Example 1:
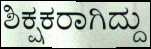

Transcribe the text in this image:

ಶಿಕ್ಷಕರಾಗಿದ್ದು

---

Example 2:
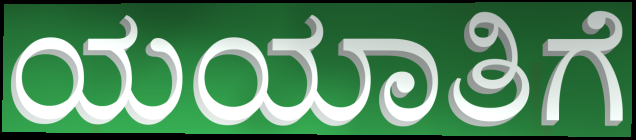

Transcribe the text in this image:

ಯಯಾತಿಗೆ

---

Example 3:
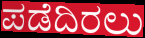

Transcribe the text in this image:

ಪಡೆದಿರಲು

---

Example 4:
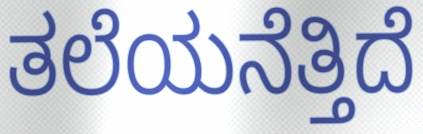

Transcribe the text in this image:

ತಲೆಯನೆತ್ತಿದೆ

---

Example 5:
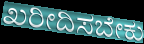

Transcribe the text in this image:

ಖರೀದಿಸಬೇಕು